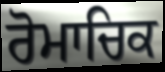
ਰੋਮਾਚਿਕ